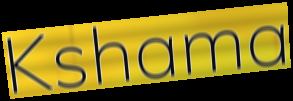
Kshama